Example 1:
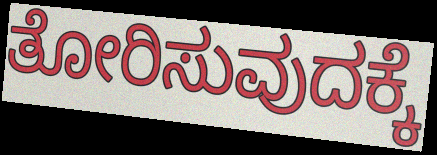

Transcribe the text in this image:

ತೋರಿಸುವುದಕ್ಕೆ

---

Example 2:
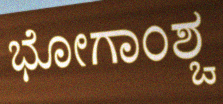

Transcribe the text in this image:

ಭೋಗಾಂಶ್ಚ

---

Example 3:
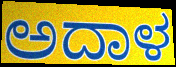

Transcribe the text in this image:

ಅದಾಳ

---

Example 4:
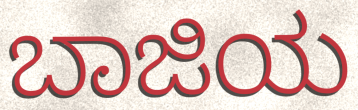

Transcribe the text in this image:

ಬಾಜಿಯ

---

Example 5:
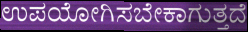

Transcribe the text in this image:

ಉಪಯೋಗಿಸಬೇಕಾಗುತ್ತದೆ